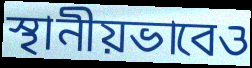
স্থানীয়ভাবেও